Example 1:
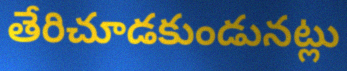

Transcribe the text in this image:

తేరిచూడకుండునట్లు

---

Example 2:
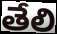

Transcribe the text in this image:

తేలి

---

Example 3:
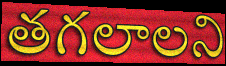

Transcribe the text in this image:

తగలాలని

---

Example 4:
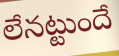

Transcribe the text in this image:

లేనట్టుందే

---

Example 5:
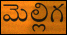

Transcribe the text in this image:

మెల్లిగ